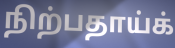
நிற்பதாய்க்